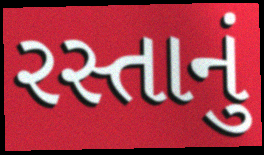
રસ્તાનું